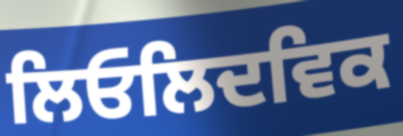
ਲਿਓਲਿਦਵਿਕ